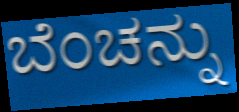
ಬೆಂಚನ್ನು